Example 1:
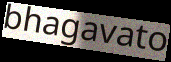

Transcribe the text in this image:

bhagavato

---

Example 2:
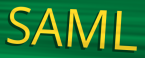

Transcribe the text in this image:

SAML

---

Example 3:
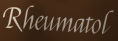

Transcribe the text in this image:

Rheumatol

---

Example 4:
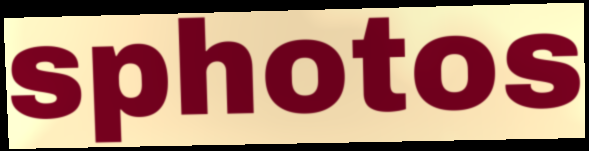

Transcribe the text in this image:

sphotos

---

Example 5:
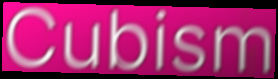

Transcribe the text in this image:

Cubism